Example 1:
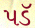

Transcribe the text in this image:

પડૅ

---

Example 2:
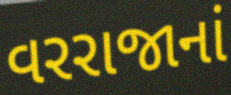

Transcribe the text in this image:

વરરાજાનાં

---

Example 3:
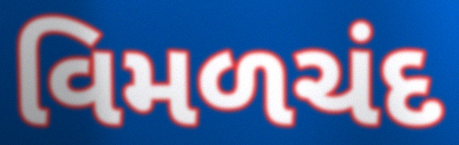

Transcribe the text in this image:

વિમળચંદ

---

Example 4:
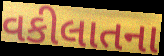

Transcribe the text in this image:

વકીલાતના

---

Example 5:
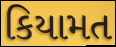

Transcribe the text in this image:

કિયામત